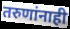
तरुणांनाही